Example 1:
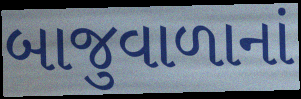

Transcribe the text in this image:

બાજુવાળાનાં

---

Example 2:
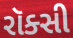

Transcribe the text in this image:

રૉક્સી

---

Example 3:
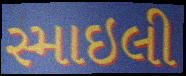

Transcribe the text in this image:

સ્માઇલી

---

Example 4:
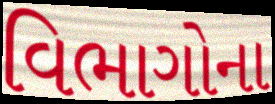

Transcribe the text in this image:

વિભાગોના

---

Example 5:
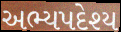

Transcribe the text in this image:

અભ્યપદેશ્ય